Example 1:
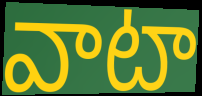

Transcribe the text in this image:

వాటా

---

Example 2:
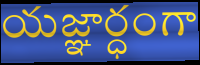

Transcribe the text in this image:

యజ్ఞార్ధంగా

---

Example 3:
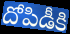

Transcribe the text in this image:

దోపిడీకి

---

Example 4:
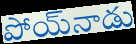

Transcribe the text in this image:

పోయ్‌నాడు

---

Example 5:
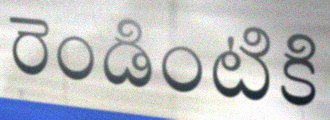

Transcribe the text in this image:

రెండింటికి